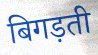
बिगड़ती